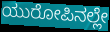
ಯುರೋಪಿನಲ್ಲೇ